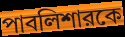
পাবলিশারকে